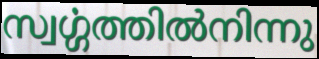
സ്വൎഗ്ഗത്തിൽനിന്നു